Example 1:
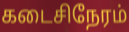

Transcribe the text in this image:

கடைசிநேரம்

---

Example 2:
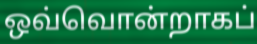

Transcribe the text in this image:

ஒவ்வொன்றாகப்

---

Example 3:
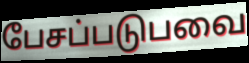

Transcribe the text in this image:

பேசப்படுபவை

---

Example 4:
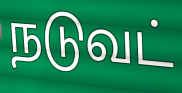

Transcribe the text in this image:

நடுவட்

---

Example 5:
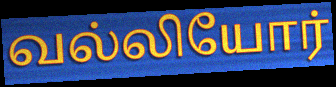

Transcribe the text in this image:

வல்லியோர்